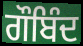
ਗੌਬਿੰਦ